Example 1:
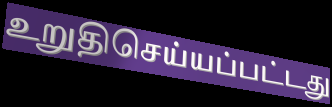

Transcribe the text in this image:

உறுதிசெய்யப்பட்டது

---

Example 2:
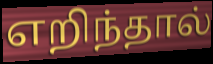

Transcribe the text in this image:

எறிந்தால்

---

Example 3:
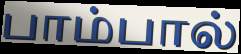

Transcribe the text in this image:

பாம்பால்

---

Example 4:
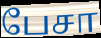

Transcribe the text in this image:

பேசா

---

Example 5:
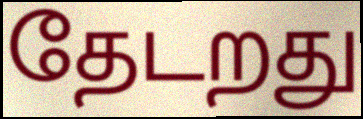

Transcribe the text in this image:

தேடறது